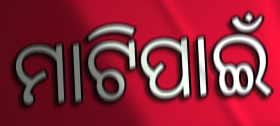
ମାଟିପାଇଁ